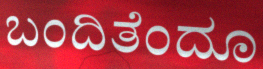
ಬಂದಿತೆಂದೂ